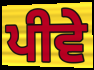
ਪੀਵੇ